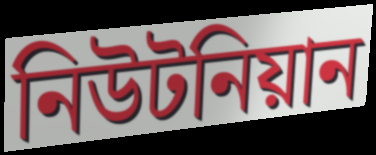
নিউটনিয়ান